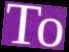
To